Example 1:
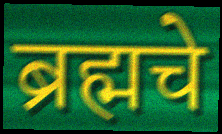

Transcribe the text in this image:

ब्रह्मचे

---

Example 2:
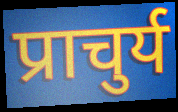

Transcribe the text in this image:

प्राचुर्य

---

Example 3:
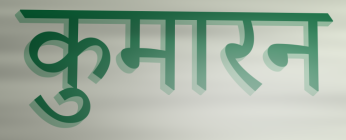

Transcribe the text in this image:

कुमारन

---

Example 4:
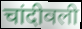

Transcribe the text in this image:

चांदीवली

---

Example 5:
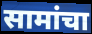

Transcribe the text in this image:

सामांचा